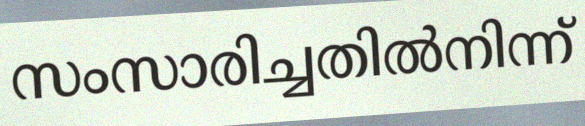
സംസാരിച്ചതിൽനിന്ന്